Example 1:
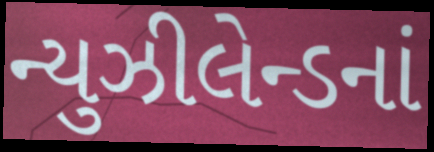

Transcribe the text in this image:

ન્યુઝીલેન્ડનાં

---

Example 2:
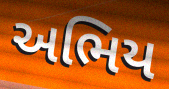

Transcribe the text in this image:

અભિય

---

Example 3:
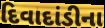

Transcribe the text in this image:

દિવાદાંડીના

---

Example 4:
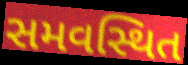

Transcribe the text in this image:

સમવસ્થિત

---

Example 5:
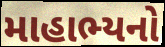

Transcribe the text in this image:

માહાભ્યનો